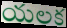
యలక